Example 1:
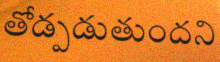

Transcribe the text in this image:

తోడ్పడుతుందని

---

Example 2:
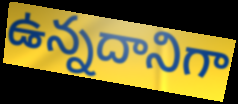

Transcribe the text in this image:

ఉన్నదానిగా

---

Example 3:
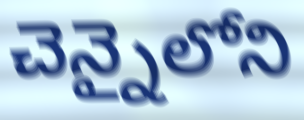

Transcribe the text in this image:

చెన్నైలోని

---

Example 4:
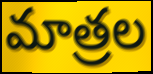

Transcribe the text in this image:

మాత్రల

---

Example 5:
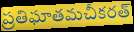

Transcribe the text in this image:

ప్రతిఘాతమచీకరత్